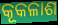
କୂକଳାଶ